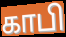
காபி